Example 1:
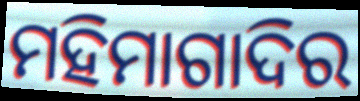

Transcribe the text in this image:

ମହିମାଗାଦିର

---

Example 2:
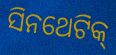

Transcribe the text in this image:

ସିନଥେଟିକ୍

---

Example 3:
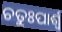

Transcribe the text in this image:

ଚତୁଃପାର୍ଶ୍ବ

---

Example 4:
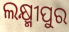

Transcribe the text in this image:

ଲକ୍ଷ୍ମୀପୁର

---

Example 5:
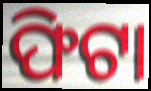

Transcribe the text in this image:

ଫିଟା